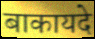
बाकायदे